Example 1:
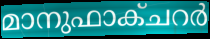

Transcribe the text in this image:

മാനുഫാക്ചറർ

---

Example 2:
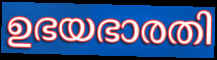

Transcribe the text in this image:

ഉഭയഭാരതി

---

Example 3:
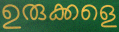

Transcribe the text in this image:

ഉരുക്കളെ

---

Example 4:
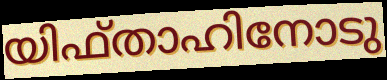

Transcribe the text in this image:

യിഫ്താഹിനോടു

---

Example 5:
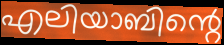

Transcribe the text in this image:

എലിയാബിന്റെ